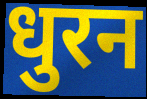
धुरन